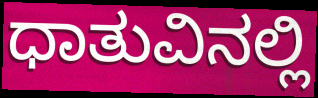
ಧಾತುವಿನಲ್ಲಿ